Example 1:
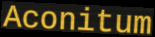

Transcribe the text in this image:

Aconitum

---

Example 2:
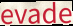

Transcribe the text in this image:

evade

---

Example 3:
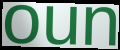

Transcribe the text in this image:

oun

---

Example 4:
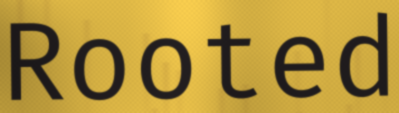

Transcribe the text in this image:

Rooted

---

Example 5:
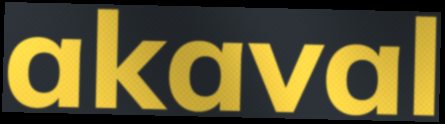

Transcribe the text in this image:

akaval